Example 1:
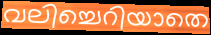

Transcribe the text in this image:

വലിച്ചെറിയാതെ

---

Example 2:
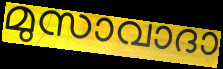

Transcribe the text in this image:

മുസാവാദാ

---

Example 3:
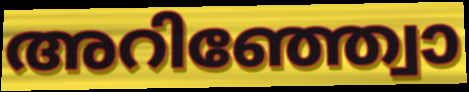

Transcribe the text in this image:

അറിഞ്ഞ്വോ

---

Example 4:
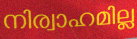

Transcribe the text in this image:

നിര്വാഹമില്ല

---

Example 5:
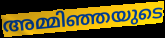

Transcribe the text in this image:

അമ്മിഞ്ഞയുടെ